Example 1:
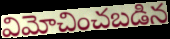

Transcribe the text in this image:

విమోచించబడిన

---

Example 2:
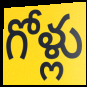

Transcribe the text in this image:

గోళ్లు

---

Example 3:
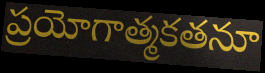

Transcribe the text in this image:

ప్రయోగాత్మకతనూ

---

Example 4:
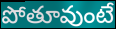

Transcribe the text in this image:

పోతూవుంటే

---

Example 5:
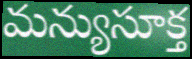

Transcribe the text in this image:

మన్యుసూక్త